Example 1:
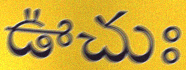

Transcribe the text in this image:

ఊచుః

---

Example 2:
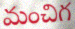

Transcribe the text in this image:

మంచిగ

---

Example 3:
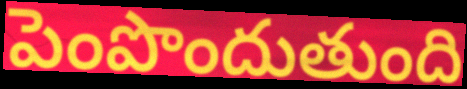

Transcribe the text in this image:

పెంపొందుతుంది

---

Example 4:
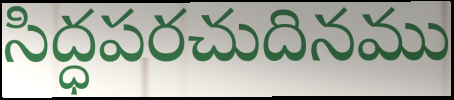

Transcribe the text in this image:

సిద్ధపరచుదినము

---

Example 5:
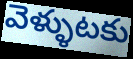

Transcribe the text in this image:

వెళ్ళుటకు